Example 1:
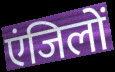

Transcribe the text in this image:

एंजिलों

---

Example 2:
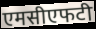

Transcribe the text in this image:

एमसीएफटी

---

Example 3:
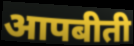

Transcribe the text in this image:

आपबीती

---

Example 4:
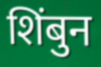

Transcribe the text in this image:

शिंबुन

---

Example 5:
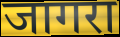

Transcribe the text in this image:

जागरा